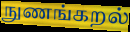
நுணங்கறல்